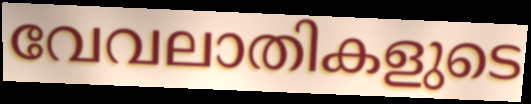
വേവലാതികളുടെ